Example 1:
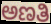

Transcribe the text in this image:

ಅಣತಿ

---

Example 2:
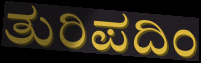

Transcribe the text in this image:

ತುರಿಪದಿಂ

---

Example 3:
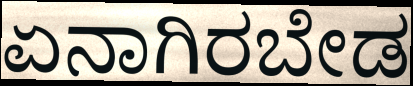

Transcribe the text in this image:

ಏನಾಗಿರಬೇಡ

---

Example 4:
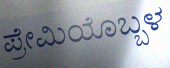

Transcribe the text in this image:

ಪ್ರೇಮಿಯೊಬ್ಬಳ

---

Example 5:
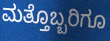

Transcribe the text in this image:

ಮತ್ತೊಬ್ಬರಿಗೂ